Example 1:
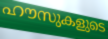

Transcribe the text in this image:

ഹൗസുകളുടെ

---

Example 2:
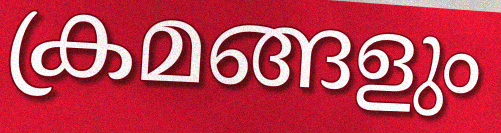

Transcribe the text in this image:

ക്രമങ്ങളും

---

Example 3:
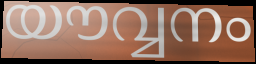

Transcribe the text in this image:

യൗവ്വനം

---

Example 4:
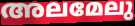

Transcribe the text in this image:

അലമേലു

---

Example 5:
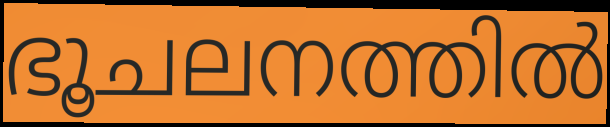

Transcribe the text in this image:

ഭൂചലനത്തിൽ